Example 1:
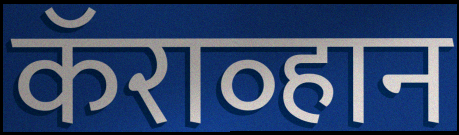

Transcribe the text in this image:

कॅराव्हान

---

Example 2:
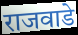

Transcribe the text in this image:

राजवाडे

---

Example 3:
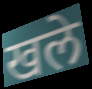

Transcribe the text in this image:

खले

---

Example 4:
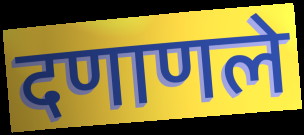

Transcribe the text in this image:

दणाणले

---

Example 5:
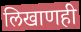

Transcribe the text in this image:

लिखाणही